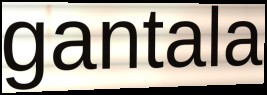
gantala